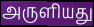
அருளியது